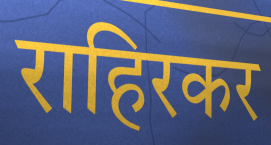
राहिरकर